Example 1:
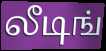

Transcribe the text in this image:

லீடிங்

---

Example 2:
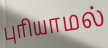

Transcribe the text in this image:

புரியாமல்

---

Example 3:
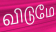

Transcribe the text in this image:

விடுமே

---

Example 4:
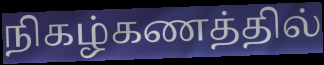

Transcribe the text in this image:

நிகழ்கணத்தில்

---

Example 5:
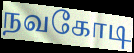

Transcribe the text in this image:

நவகோடி